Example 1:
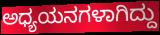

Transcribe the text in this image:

ಅಧ್ಯಯನಗಳಾಗಿದ್ದು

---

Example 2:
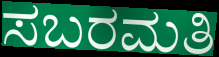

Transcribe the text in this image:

ಸಬರಮತಿ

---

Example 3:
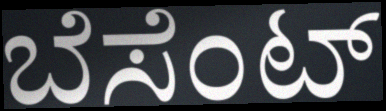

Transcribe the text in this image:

ಬೆಸೆಂಟ್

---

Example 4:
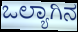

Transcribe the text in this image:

ಒಲ್ಯಾಗಿನ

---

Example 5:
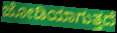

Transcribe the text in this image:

ಜೋಡಿಯಾಗುತ್ತದೆ